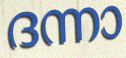
ദന്നാ